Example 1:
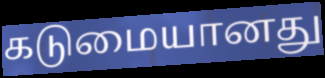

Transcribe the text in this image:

கடுமையானது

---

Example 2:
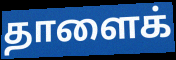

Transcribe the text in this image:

தாளைக்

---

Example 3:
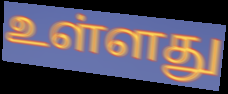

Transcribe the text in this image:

உள்ளது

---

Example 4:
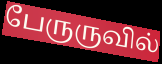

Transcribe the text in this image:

பேருருவில்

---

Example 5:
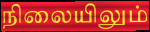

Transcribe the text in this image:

நிலையிலும்